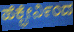
ಹೆಕ್ಟೇರ್ನಿಂದ